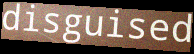
disguised